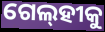
ଗେଲ୍‌ହୀକୁ